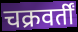
चक्रवर्तीं